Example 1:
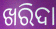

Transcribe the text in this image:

ଖରିଦା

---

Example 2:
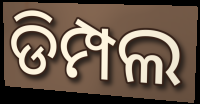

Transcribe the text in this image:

ଡିମ୍ପଲ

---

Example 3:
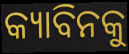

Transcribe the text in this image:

କ୍ୟାବିନକୁ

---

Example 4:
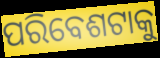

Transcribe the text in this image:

ପରିବେଶଟାକୁ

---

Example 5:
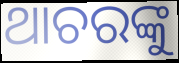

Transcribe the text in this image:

ଥାଚରଙ୍କୁ